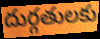
దుర్గతులకు